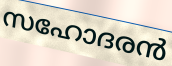
സഹോദരൻ